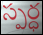
స్పర్ధ